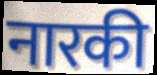
नारकी